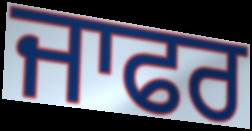
ਜਾਫਰ